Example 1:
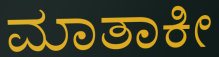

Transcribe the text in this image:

ಮಾತಾಕೀ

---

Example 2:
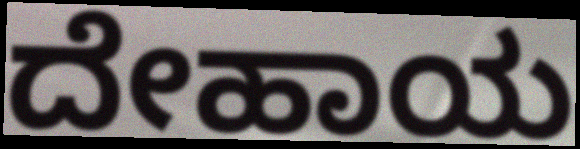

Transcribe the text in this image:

ದೇಹಾಯ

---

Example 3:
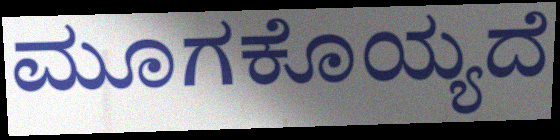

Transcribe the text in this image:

ಮೂಗಕೊಯ್ಯದೆ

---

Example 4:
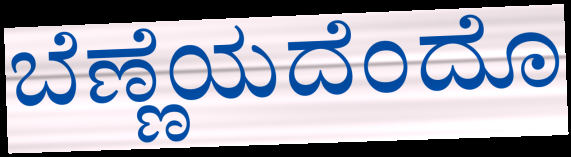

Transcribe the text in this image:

ಬೆಣ್ಣೆಯದೆಂದೊ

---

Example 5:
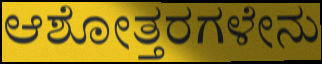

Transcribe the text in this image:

ಆಶೋತ್ತರಗಳೇನು